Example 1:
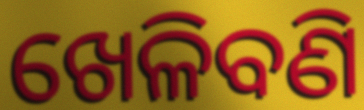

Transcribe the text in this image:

ଖେଳିବଣି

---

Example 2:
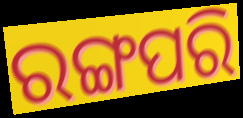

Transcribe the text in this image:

ରଙ୍ଗପରି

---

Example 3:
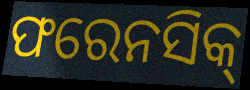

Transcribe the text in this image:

ଫରେନସିକ୍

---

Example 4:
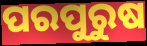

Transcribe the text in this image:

ପରପୁରୁଷ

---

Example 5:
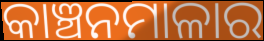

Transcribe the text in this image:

କାଞ୍ଚନମାଳାର